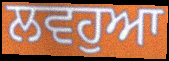
ਲਵਹੁਆ